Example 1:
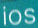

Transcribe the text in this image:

ios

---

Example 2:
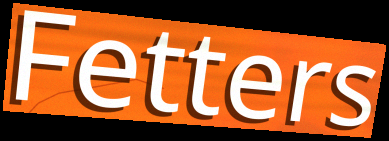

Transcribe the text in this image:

Fetters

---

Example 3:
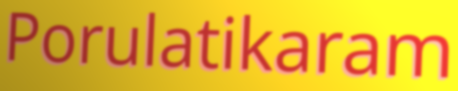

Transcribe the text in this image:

Porulatikaram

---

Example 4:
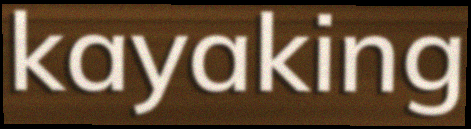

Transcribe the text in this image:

kayaking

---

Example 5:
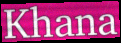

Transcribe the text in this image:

Khana